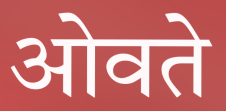
ओवते